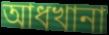
আধখানা